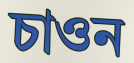
চাওন